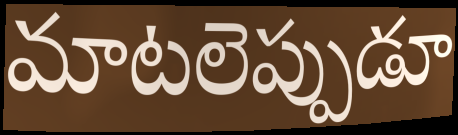
మాటలెప్పుడూ